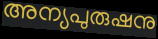
അന്യപുരുഷനു